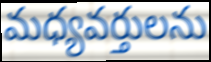
మధ్యవర్తులను